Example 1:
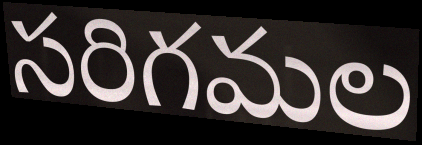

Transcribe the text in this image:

సరిగమల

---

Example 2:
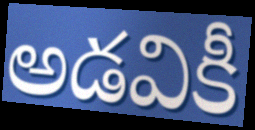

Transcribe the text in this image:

అడవికీ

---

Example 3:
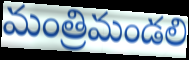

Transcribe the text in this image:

మంత్రిమండలి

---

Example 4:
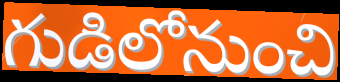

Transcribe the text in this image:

గుడిలోనుంచి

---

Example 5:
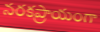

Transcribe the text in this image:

నరకప్రాయంగా